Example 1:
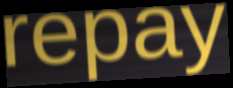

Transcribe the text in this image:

repay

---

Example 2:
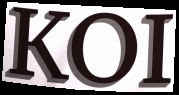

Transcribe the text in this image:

KOI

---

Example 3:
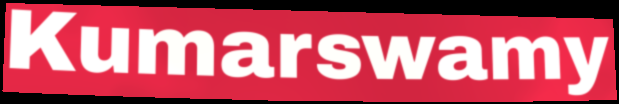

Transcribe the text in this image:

Kumarswamy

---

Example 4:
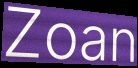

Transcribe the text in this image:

Zoan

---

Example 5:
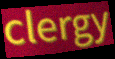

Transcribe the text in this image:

clergy